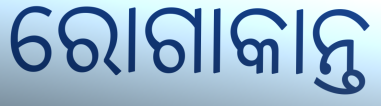
ରୋଗାକାନ୍ତ